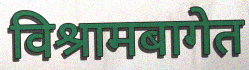
विश्रामबागेत